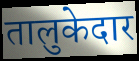
तालुकेदार